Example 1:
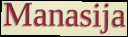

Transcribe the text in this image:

Manasija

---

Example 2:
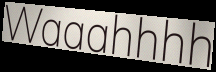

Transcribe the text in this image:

Waaahhhh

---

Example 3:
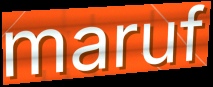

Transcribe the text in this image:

maruf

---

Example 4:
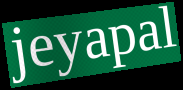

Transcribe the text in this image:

jeyapal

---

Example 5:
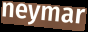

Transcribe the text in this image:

neymar